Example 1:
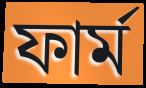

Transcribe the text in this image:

ফাৰ্ম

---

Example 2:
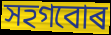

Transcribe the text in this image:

সহগবোৰ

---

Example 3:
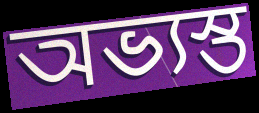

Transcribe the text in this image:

অভ্যস্ত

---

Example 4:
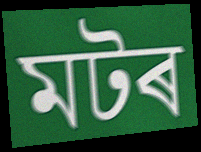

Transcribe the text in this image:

মটৰ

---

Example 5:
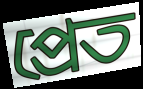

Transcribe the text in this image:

প্ৰেত